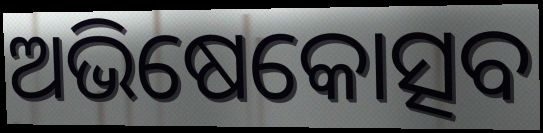
ଅଭିଷେକୋତ୍ସବ